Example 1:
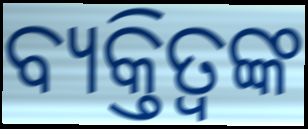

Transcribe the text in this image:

ବ୍ୟକ୍ତିତ୍ବଙ୍କ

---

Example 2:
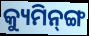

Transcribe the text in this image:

କ୍ୟୁମିନ୍‌ଙ୍ଗ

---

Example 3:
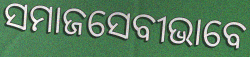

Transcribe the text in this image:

ସମାଜସେବୀଭାବେ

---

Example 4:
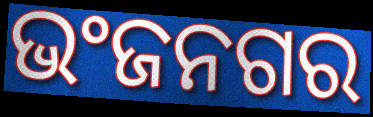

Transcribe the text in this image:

ଭଂଜନଗର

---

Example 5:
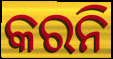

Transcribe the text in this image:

କରନି